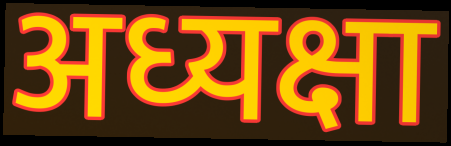
अध्यक्षा